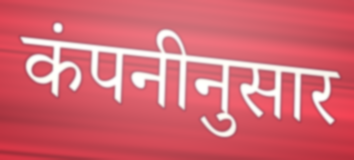
कंपनीनुसार